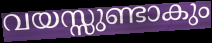
വയസ്സുണ്ടാകും